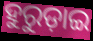
ହୁରୁଡ଼ାଇ